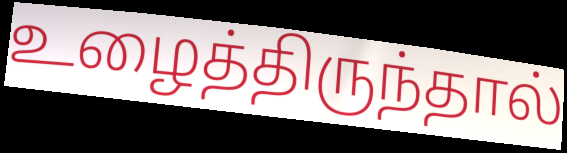
உழைத்திருந்தால்